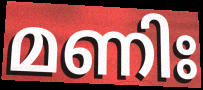
മണിഃ